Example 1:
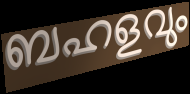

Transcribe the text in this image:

ബഹളവും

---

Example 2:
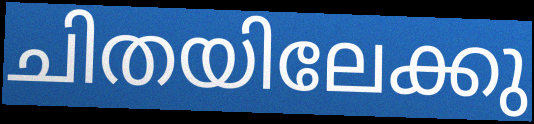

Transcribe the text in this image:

ചിതയിലേക്കു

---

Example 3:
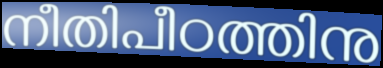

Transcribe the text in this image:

നീതിപീഠത്തിനു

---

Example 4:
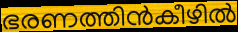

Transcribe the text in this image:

ഭരണത്തിൻകീഴിൽ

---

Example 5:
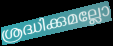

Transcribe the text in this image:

ശ്രദ്ധിക്കുമല്ലോ